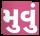
મુવું